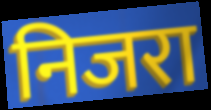
निजरा